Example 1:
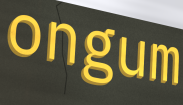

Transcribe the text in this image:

ongum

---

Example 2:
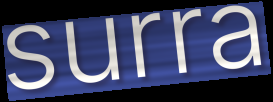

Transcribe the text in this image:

surra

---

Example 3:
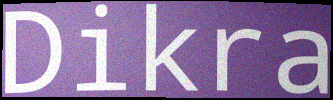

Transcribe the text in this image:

Dikra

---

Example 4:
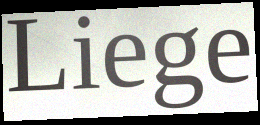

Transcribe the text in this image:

Liege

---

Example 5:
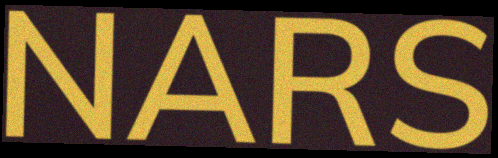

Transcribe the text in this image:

NARS